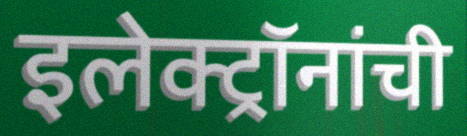
इलेक्ट्रॉनांची